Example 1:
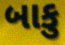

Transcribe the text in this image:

બાકુ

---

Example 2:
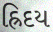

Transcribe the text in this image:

હ્રિદય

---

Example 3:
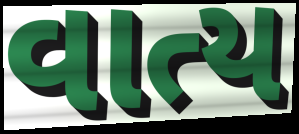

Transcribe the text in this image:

વાત્ય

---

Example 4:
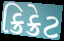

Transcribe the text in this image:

ક્રિક્રેટ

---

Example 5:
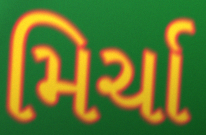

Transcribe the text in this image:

મિર્ચા